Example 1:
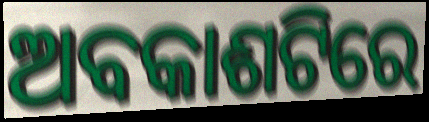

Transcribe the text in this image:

ଅବକାଶଟିରେ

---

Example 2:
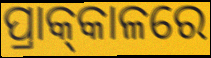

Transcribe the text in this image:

ପ୍ରାକ୍‌କାଳରେ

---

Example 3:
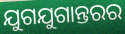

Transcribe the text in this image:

ଯୁଗଯୁଗାନ୍ତରର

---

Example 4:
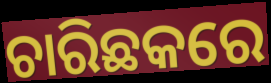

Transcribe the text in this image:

ଚାରିଛକରେ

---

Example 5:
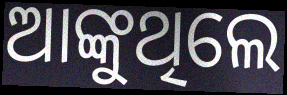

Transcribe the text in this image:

ଆଙ୍କୁଥିଲେ